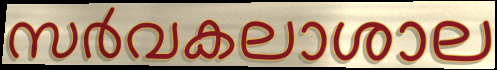
സർവകലാശാല